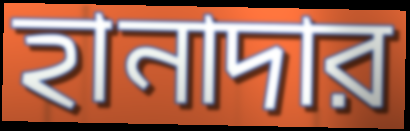
হানাদার